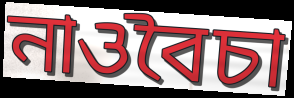
নাওবৈচা